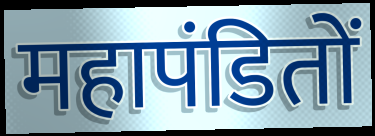
महापंडितों